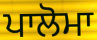
ਪਾਲੋਮਾ